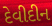
દેવીદીન